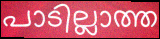
പാടില്ലാത്ത